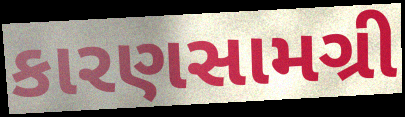
કારણસામગ્રી